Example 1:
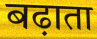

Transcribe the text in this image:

बढ़ाता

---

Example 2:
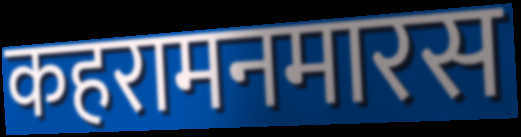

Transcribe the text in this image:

कहरामनमारस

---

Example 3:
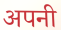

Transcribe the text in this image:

अपनी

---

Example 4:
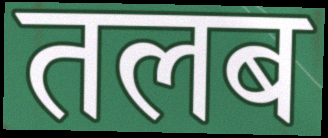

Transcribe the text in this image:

तलब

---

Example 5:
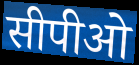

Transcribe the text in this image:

सीपीओ